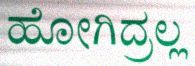
ಹೋಗಿದ್ರಲ್ಲ